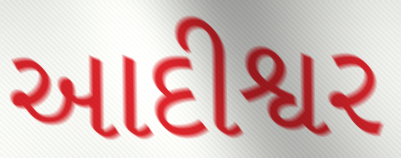
આદીશ્વર